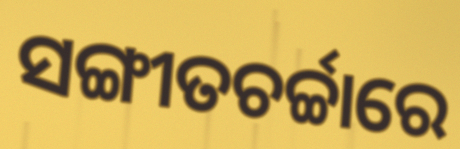
ସଙ୍ଗୀତଚର୍ଚ୍ଚାରେ